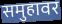
समुहावर